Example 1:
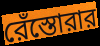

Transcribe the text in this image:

রেঁস্তোরার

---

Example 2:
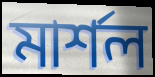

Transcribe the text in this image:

মার্শল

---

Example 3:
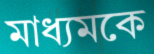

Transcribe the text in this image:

মাধ্যমকে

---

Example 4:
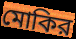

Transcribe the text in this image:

মোকির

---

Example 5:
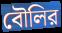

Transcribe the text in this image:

বৌলির